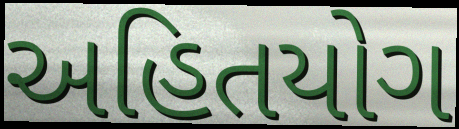
અહિતયોગ